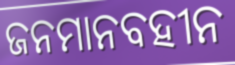
ଜନମାନବହୀନ